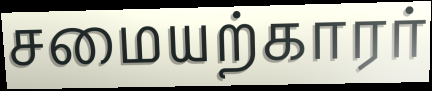
சமையற்காரர்